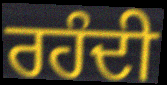
ਰਹੰਦੀ